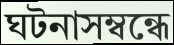
ঘটনাসম্বন্ধে